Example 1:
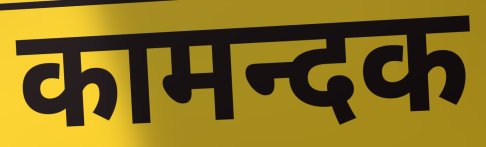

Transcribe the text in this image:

कामन्दक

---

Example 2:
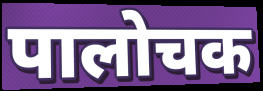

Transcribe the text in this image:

पालोचक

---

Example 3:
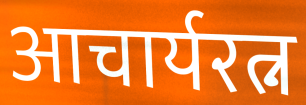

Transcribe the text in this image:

आचार्यरत्न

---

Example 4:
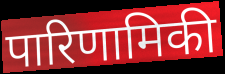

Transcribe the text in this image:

पारिणामिकी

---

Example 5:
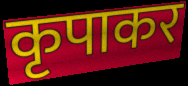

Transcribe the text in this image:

कृपाकर